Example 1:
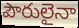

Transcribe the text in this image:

పౌరులైనా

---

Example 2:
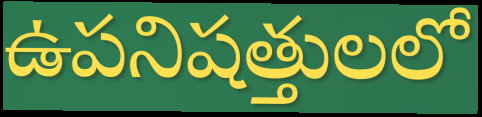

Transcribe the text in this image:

ఉపనిషత్తులలో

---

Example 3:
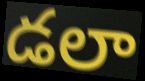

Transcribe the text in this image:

డలా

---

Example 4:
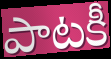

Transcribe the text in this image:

పాటకీ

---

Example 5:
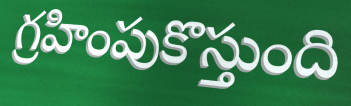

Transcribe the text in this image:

గ్రహింపుకొస్తుంది